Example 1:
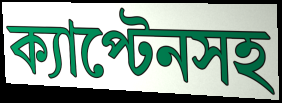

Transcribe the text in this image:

ক্যাপ্টেনসহ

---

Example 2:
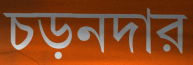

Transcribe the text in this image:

চড়নদার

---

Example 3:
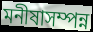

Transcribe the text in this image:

মনীষাসম্পন্ন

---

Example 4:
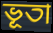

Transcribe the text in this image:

ভূতা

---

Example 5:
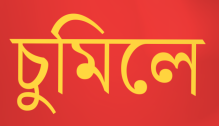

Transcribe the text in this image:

চুমিলে